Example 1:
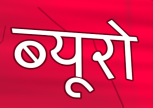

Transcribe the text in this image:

ब्‍यूरो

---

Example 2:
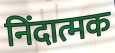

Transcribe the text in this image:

निंदात्मक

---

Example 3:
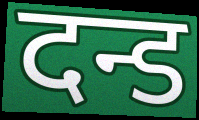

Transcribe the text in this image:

दन्ड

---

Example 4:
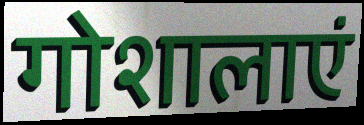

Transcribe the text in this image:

गोशालाएं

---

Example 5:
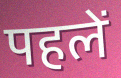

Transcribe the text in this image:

पहलें